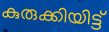
കുരുക്കിയിട്ട്